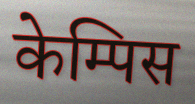
केम्पिस